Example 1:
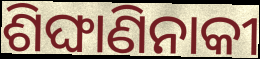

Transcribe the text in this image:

ଶିଙ୍ଘାଣିନାକୀ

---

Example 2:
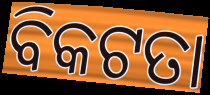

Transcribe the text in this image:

ବିକଟତା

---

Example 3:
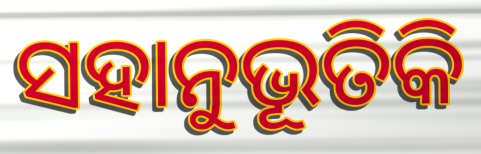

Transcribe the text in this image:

ସହାନୁଭୂତିକି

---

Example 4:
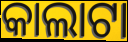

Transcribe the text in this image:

କାଲାଟା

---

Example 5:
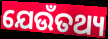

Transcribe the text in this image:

ଯେଉଁତଥ୍ୟ